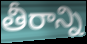
తీరాన్ని